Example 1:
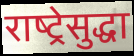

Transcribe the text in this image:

राष्ट्रेसुद्धा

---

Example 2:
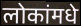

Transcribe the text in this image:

लोकांमधे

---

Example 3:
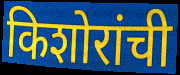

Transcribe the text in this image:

किशोरांची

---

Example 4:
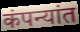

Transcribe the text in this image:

कंपन्यांत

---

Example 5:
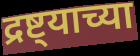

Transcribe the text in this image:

द्रष्ट्याच्या